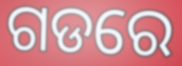
ଗଡରେ